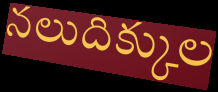
నలుదిక్కుల